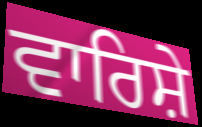
ਵਾਰਿਸ਼ੇ